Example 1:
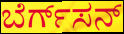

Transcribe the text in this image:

ಬೆರ್ಗ್‌ಸನ್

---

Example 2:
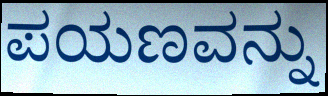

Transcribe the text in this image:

ಪಯಣವನ್ನು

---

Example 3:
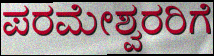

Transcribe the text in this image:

ಪರಮೇಶ್ವರರಿಗೆ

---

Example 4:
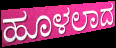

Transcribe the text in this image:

ಹೂಳಲಾದ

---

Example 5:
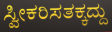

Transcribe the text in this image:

ಸ್ವೀಕರಿಸತಕ್ಕದ್ದು